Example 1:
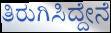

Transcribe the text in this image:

ತಿರುಗಿಸಿದ್ದೇನೆ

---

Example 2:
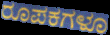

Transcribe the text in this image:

ರೂಪಕಗಳೂ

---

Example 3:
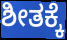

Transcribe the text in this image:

ಶೀತಕ್ಕೆ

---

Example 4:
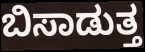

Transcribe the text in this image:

ಬಿಸಾಡುತ್ತ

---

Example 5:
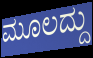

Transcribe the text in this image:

ಮೂಲದ್ದು